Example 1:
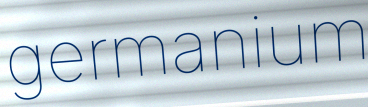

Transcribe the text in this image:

germanium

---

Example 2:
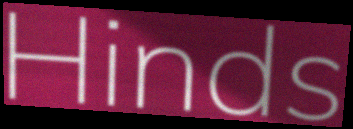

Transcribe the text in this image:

Hinds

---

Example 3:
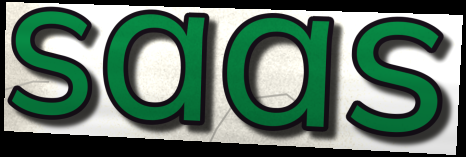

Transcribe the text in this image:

saas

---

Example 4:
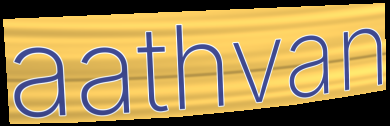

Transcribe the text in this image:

aathvan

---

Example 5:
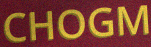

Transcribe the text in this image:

CHOGM